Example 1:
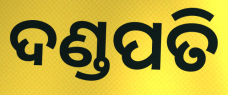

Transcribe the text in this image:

ଦଣ୍ଡପତି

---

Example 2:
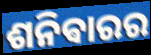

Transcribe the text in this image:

ଶନିଵାରର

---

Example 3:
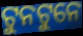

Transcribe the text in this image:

ଟୁନଟୁନେ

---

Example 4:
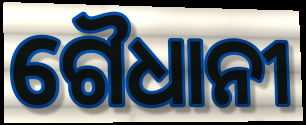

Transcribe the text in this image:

ଗୈଧାନୀ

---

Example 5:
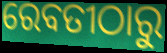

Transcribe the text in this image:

ରେବତୀଠାରୁ